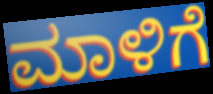
ಮಾಳಿಗೆ